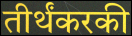
तीर्थंकरकी